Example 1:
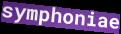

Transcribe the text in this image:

symphoniae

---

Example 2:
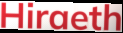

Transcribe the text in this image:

Hiraeth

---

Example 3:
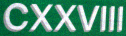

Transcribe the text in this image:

CXXVIII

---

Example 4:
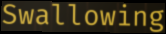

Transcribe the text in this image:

Swallowing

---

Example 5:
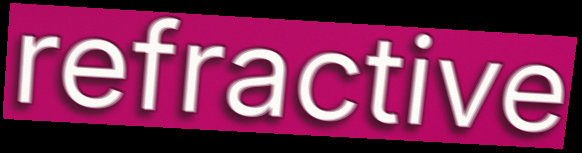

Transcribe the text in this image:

refractive